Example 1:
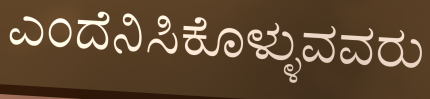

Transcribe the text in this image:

ಎಂದೆನಿಸಿಕೊಳ್ಳುವವರು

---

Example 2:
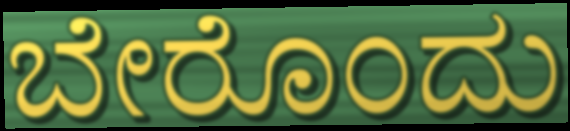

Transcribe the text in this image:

ಬೇರೊಂದು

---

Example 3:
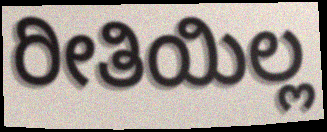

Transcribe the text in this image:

ರೀತಿಯಿಲ್ಲ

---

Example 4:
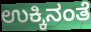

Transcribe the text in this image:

ಉಕ್ಕಿನಂತೆ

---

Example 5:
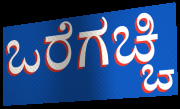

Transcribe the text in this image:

ಒರೆಗಚ್ಚಿ